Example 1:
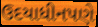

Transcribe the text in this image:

ઉદયાધીનપણે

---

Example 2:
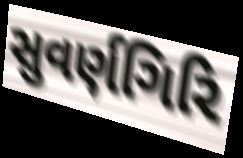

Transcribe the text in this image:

સુવર્ણગિરિ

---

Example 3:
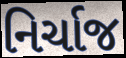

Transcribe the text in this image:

નિર્ચાજ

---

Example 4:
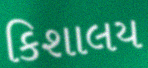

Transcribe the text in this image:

કિશાલય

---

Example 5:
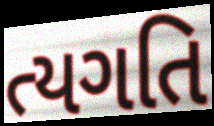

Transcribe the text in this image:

ત્યગતિ